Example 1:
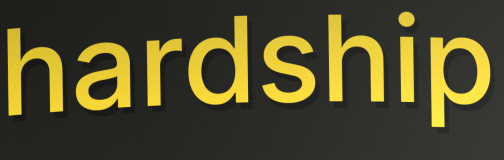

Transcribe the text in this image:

hardship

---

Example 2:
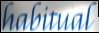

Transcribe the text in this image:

habitual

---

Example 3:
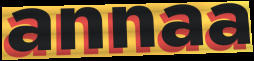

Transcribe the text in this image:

annaa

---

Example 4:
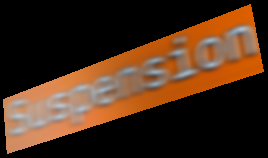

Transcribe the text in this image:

Suspension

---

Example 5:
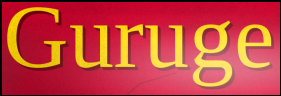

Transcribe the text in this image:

Guruge